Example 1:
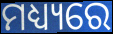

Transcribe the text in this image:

ମଧ୍ୟ୍ୟରେ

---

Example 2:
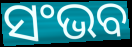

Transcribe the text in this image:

ସଂଭବ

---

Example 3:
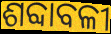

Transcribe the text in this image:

ଶବ୍ଦାବଳୀ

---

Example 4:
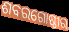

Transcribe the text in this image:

ଶବରଗୋଷ୍ଠୀର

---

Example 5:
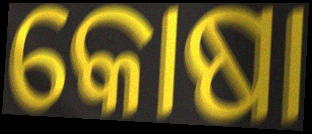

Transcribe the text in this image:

କୋଷା